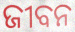
ଜୀବନ